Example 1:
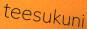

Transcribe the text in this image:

teesukuni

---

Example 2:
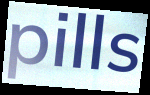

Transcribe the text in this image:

pills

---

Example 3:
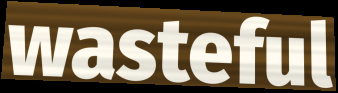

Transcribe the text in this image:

wasteful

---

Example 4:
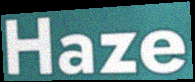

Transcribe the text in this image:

Haze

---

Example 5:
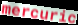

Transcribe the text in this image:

mercuric